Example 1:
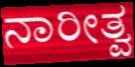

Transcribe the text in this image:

ನಾರೀತ್ವ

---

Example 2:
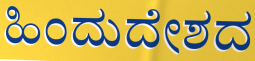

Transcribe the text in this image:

ಹಿಂದುದೇಶದ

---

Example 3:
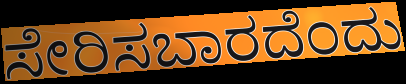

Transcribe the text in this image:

ಸೇರಿಸಬಾರದೆಂದು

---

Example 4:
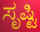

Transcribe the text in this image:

ಸೃಷ್ಟಿ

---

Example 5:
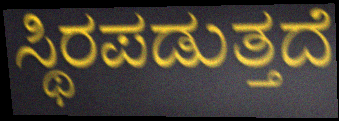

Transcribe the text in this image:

ಸ್ಥಿರಪಡುತ್ತದೆ